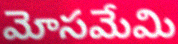
మోసమేమి